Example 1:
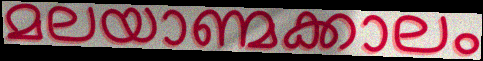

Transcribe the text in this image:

മലയാണ്മക്കാലം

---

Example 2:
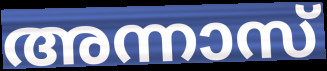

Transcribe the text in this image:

അന്നാസ്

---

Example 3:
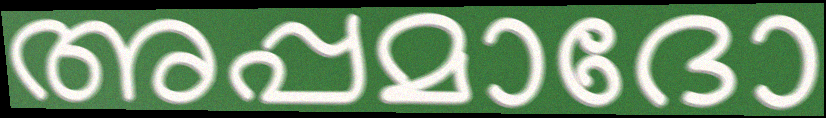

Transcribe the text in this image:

അപ്പമാദോ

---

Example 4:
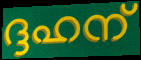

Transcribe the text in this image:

ദ്ദഹന്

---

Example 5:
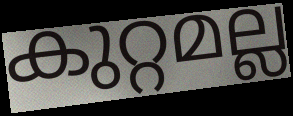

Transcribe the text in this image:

കുറ്റമല്ല